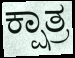
ಕ್ಷಾತ್ರ